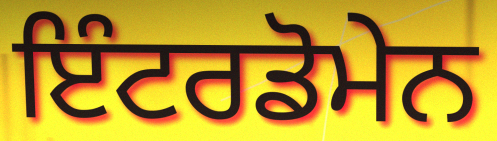
ਇੰਟਰਡੋਮੇਨ